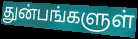
துன்பங்களுள்